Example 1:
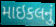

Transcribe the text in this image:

માઇકલનું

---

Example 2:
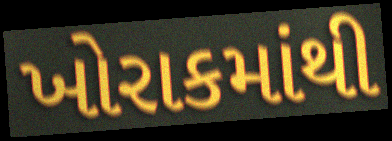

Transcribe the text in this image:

ખોરાકમાંથી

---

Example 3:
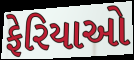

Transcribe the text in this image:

ફેરિયાઓ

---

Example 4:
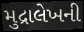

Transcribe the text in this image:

મુદ્રાલેખની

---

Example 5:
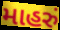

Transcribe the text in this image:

માહરું